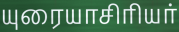
யுரையாசிரியர்